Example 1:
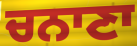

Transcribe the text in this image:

ਚਨਾਣਾ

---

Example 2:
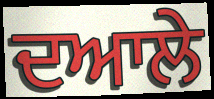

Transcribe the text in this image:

ਦਆਲੇ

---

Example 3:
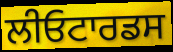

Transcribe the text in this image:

ਲੀਓਟਾਰਡਸ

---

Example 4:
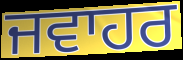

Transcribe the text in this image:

ਜਵਾਹਰ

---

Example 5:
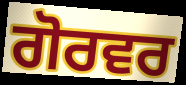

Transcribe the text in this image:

ਗੋਰਵਰ